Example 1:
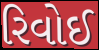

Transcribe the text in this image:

રિવોઈ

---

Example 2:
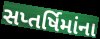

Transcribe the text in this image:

સપ્તર્ષિમાંના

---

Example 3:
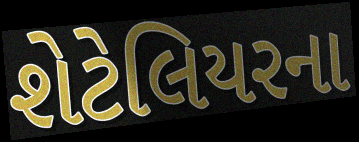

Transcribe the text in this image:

શેટેલિયરના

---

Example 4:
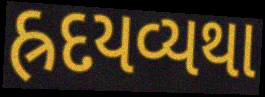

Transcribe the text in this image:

હ્રદયવ્યથા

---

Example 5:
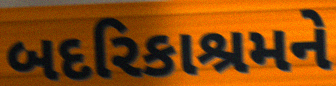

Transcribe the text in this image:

બદરિકાશ્રમને